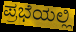
ಪ್ರಭೆಯಲ್ಲಿ